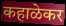
कहाळेकर